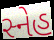
સ્નેહ